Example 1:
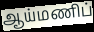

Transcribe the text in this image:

ஆய்மணிப்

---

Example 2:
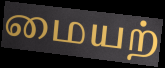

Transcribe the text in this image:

மையற்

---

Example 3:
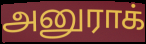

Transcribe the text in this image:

அனுராக்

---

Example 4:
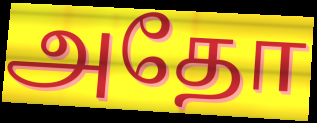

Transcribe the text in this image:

அதோ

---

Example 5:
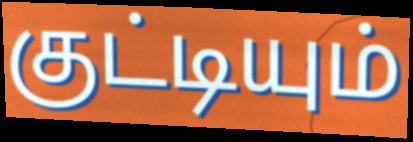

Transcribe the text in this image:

குட்டியும்